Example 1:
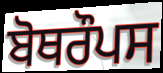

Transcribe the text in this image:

ਬੋਥਰੌਪਸ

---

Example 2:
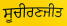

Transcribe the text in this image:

ਸੂਚੀਰਣਜੀਤ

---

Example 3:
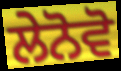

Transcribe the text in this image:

ਲੇਨੋਵੋ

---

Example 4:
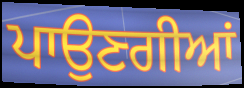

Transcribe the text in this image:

ਪਾਉਣਗੀਆਂ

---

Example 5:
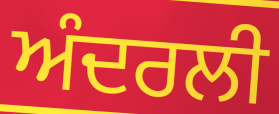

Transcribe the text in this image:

ਅੰਦਰਲੀ